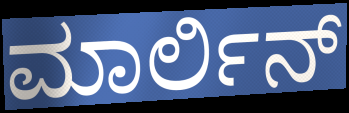
ಮಾರ್ಲಿನ್